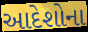
આદેશોના